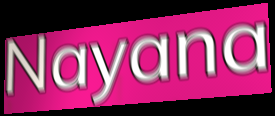
Nayana